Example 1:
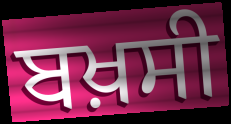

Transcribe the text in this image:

ਬਖ਼ਸੀ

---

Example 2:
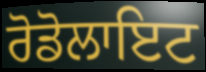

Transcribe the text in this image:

ਰੋਡੋਲਾਇਟ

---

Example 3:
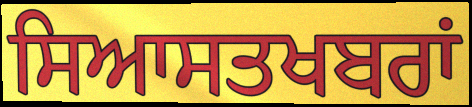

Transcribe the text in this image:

ਸਿਆਸਤਖਬਰਾਂ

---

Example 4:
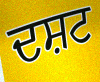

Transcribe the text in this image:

ਦਸ਼ਟ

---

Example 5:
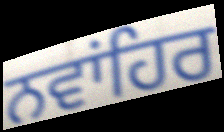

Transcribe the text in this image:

ਨਵਾਂਹਿਰ